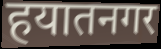
हयातनगर